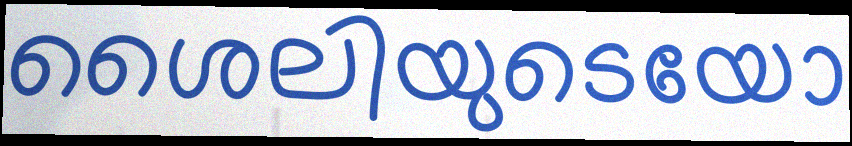
ശൈലിയുടെയോ